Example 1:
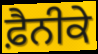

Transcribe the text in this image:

ਫ਼ੈਨੀਕੇ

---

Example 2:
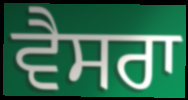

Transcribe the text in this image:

ਵੈਸਰਾ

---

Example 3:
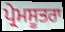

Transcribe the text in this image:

ਪ੍ਰੇਮਸੂਤਰਾ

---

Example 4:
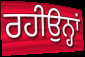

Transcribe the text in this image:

ਰਹੀਉਨ੍ਹਾਂ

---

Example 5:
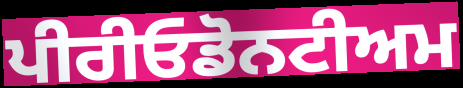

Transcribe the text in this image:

ਪੀਰੀਓਡੋਨਟੀਅਮ